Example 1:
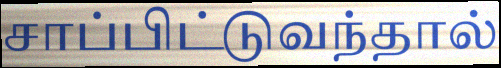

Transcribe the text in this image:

சாப்பிட்டுவந்தால்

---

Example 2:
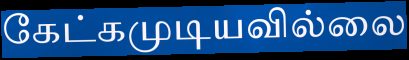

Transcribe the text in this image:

கேட்கமுடியவில்லை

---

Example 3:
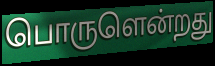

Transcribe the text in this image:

பொருளென்றது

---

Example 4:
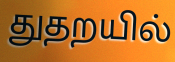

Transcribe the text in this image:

துதறயில்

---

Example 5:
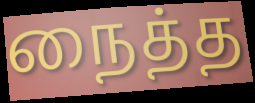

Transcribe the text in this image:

நைத்த